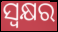
ସ୍ୱକ୍ଷର